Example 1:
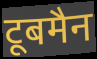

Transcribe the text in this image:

टूबमैन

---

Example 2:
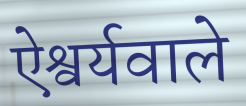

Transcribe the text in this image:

ऐश्वर्यवाले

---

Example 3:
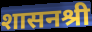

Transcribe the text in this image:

शासनश्री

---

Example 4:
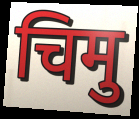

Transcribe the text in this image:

चिमु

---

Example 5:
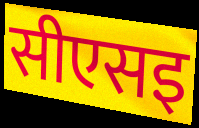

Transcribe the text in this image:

सीएसइ